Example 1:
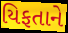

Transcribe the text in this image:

યિફતાને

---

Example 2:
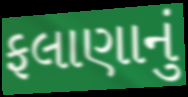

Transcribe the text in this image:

ફલાણાનું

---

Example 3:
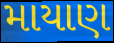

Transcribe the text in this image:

માયાણ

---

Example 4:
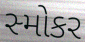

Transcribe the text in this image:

સ્મોકર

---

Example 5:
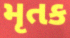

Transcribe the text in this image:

મૃતક